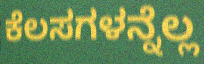
ಕೆಲಸಗಳನ್ನೆಲ್ಲ